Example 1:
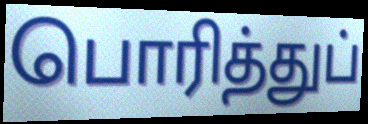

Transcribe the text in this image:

பொரித்துப்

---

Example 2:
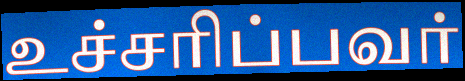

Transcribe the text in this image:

உச்சரிப்பவர்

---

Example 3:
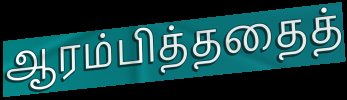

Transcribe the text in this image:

ஆரம்பித்ததைத்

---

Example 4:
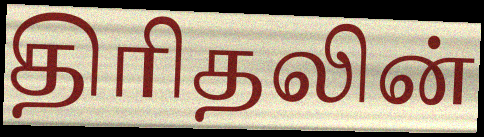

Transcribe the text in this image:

திரிதலின்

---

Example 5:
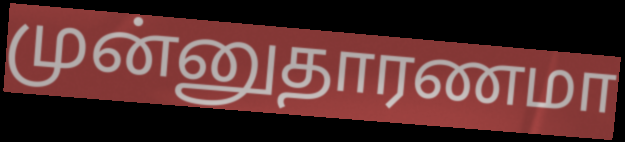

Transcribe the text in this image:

முன்னுதாரணமா